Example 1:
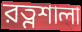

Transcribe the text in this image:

রত্নশালা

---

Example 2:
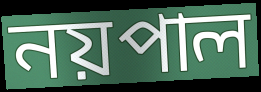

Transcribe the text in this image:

নয়পাল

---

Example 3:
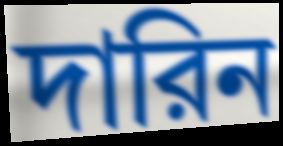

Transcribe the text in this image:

দারিন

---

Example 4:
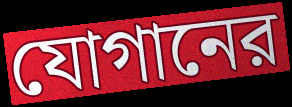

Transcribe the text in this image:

যোগানের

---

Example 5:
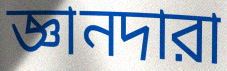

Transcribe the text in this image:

জ্ঞানদারা